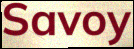
Savoy